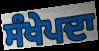
ਸੰਖੇਪਦਾ